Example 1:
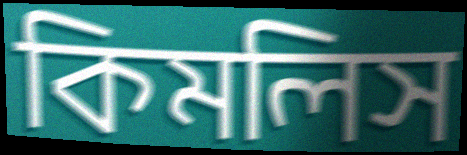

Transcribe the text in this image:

কিমলিস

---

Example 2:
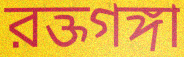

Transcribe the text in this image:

রক্তগঙ্গা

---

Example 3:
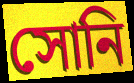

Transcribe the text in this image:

সোনি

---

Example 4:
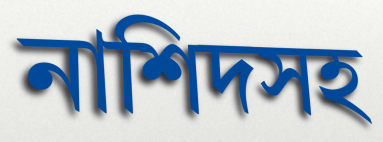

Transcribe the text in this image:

নাশিদসহ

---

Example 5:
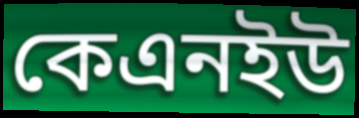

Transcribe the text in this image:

কেএনইউ